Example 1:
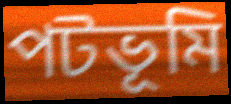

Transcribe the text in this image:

পটভূমি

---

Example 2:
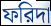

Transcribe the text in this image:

ফরিদা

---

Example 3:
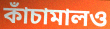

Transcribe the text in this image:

কাঁচামালও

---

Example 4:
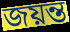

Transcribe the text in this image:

জয়ন্ত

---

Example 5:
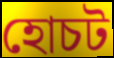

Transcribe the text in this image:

হোচট